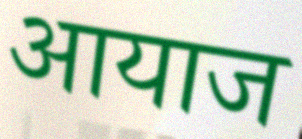
आयाज